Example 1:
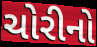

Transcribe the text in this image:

ચોરીનો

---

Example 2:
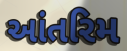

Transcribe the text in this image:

આંતરિમ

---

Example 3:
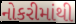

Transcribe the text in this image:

નોકરીમાંથી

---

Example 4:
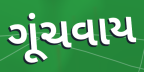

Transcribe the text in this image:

ગૂંચવાય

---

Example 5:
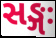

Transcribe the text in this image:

સઙ્ગઃ